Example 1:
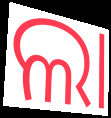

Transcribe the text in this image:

ଲା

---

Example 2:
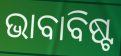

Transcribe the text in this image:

ଭାବାବିଷ୍ଟ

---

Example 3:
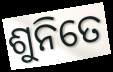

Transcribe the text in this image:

ଶୁନିତେ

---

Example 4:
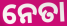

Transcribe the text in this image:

ନେତା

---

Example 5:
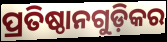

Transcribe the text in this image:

ପ୍ରତିଷ୍ଠାନଗୁଡ଼ିକର